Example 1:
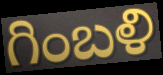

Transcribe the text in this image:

గింబళి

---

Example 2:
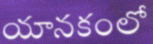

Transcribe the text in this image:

యానకంలో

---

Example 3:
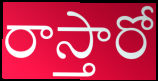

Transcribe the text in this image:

రాస్తారో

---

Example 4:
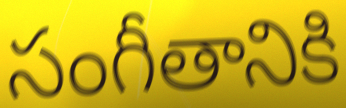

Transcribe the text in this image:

సంగీతానికి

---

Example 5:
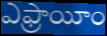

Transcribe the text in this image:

ఎఫ్రాయీం